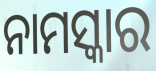
ନାମସ୍କାର